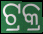
ଟ୍ରକ୍ର